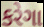
કરેગા